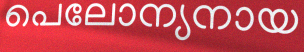
പെലോന്യനായ